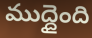
ముద్దైంది